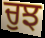
ਚੁਝ